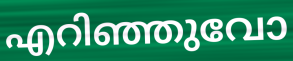
എറിഞ്ഞുവോ